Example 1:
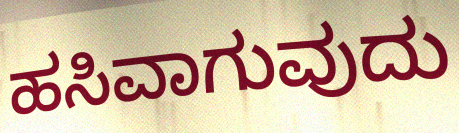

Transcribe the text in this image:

ಹಸಿವಾಗುವುದು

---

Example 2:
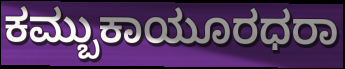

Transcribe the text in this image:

ಕಮ್ಬುಕಾಯೂರಧರಾ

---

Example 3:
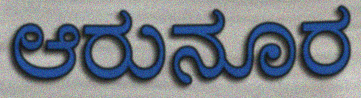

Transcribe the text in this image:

ಆರುನೂರ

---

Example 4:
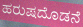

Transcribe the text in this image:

ಹರುಷದೊಡನೆ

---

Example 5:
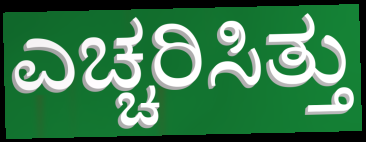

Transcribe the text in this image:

ಎಚ್ಚರಿಸಿತ್ತು